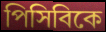
পিসিবিকে